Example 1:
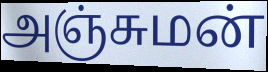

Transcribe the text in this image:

அஞ்சுமன்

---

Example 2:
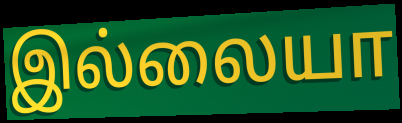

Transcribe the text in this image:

இல்லையா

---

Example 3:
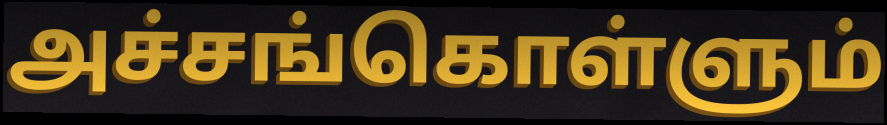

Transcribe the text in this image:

அச்சங்கொள்ளும்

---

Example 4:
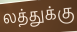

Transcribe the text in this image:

லத்துக்கு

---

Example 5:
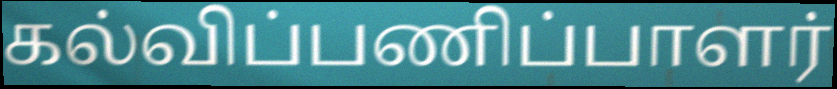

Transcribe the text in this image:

கல்விப்பணிப்பாளர்